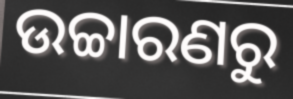
ଉଚ୍ଚାରଣରୁ